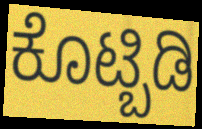
ಕೊಟ್ಬಿಡಿ